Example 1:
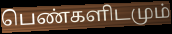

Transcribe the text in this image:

பெண்களிடமும்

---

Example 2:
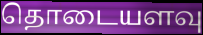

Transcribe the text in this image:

தொடையளவு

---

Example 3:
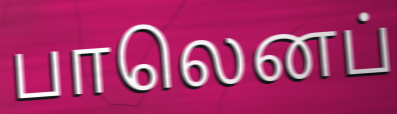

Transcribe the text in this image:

பாலெனப்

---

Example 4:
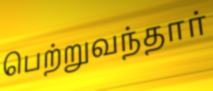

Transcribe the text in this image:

பெற்றுவந்தார்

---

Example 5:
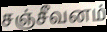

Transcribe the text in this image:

சஞ்சீவனம்